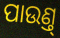
ପାଉଣ୍ତ୍